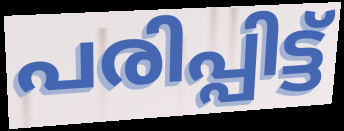
പരിപ്പിട്ട്